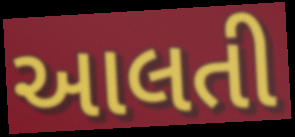
આલતી